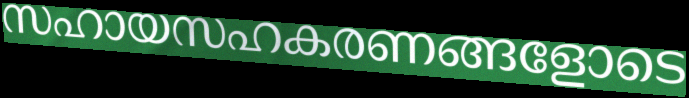
സഹായസഹകരണങ്ങളോടെ